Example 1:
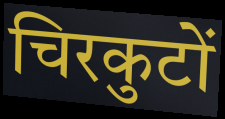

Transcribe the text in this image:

चिरकुटों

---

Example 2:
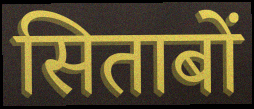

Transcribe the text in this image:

सिताबों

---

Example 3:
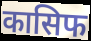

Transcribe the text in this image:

कासिफ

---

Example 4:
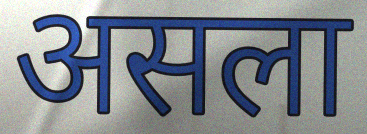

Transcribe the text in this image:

असला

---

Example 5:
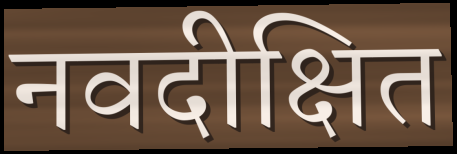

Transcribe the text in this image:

नवदीक्षित